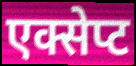
एक्सेप्ट